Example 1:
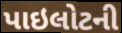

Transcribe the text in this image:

પાઇલોટની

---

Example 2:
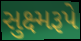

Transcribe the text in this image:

સુક્ષ્મરૂપે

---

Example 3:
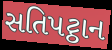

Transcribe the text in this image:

સતિપટ્ઠાન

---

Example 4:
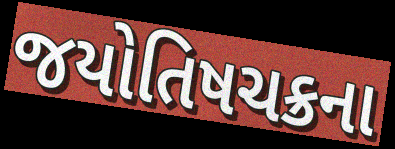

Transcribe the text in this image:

જયોતિષચક્રના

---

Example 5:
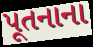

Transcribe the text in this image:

પૂતનાના